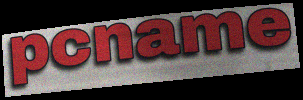
pcname